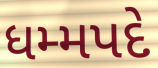
ધમ્મપદે